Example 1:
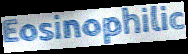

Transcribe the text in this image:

Eosinophilic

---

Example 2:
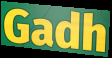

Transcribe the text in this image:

Gadh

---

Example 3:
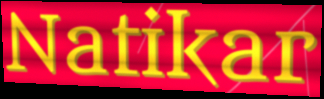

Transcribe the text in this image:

Natikar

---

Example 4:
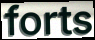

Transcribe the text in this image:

forts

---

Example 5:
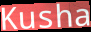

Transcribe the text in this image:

Kusha